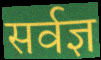
सर्वज्ञ